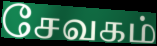
சேவகம்